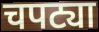
चपट्या